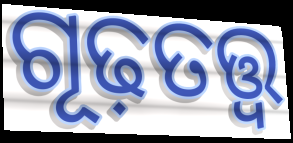
ଗୂଢ଼ତତ୍ତ୍ୱ